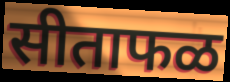
सीताफळ